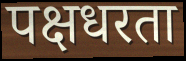
पक्षधरता